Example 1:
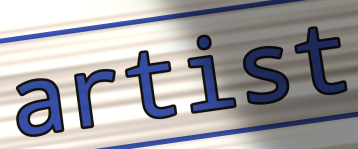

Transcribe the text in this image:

artist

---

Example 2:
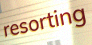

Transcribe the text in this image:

resorting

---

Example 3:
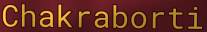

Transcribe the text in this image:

Chakraborti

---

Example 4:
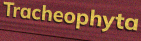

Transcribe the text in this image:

Tracheophyta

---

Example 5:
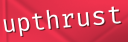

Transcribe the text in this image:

upthrust